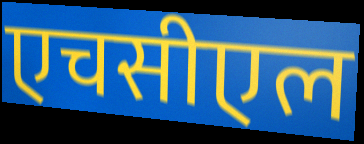
एचसीएल